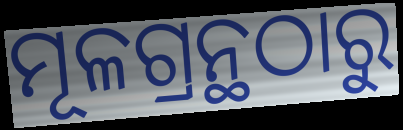
ମୂଳଗ୍ରନ୍ଥଠାରୁ